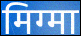
मिग्मा